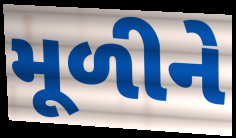
મૂળીને